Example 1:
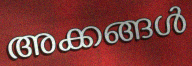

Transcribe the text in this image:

അക്കങ്ങൾ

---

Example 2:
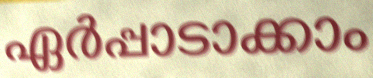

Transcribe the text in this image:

ഏർപ്പാടാക്കാം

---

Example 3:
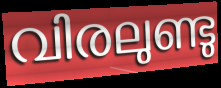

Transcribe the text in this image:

വിരലുണ്ടു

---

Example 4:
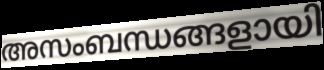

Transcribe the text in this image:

അസംബന്ധങ്ങളായി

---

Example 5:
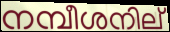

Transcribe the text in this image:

നമ്പീശനില്